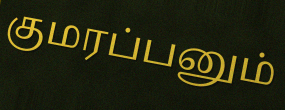
குமரப்பனும்